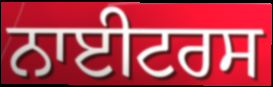
ਨਾਈਟਰਸ